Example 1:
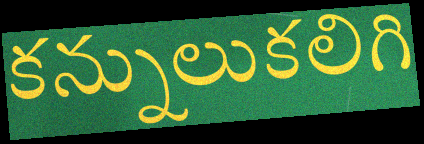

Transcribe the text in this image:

కన్నులుకలిగి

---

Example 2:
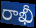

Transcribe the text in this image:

రాఖీ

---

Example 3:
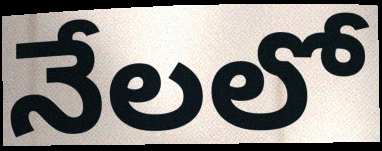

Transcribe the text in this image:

నేలలో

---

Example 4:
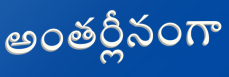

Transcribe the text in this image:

అంతర్లీనంగా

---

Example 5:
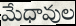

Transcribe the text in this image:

మేధావుల